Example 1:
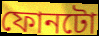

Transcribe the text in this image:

ফোনটো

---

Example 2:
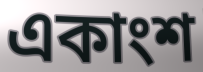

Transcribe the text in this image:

একাংশ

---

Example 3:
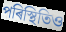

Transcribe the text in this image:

পৰিস্থিতিও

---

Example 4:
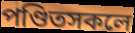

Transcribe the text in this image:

পণ্ডিতসকলে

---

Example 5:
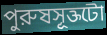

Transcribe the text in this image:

পুৰুষসূক্তটো